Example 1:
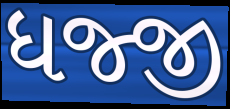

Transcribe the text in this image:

ધજ્જી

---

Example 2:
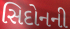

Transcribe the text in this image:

સિદોનની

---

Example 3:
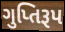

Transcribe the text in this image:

ગુપ્તિરૂપ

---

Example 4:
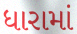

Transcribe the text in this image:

ધારામાં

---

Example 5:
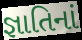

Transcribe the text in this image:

જ્ઞાતિનાં